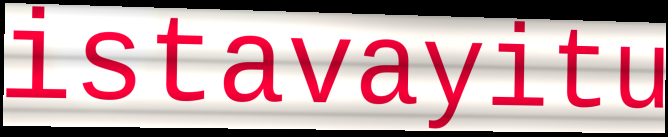
istavayitu